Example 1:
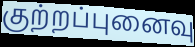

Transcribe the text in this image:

குற்றப்புனைவு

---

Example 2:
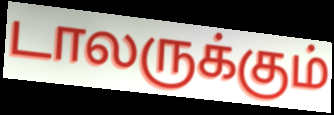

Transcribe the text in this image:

டாலருக்கும்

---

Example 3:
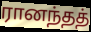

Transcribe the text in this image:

ரானந்தத்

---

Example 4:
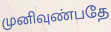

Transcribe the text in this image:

முனிவுண்பதே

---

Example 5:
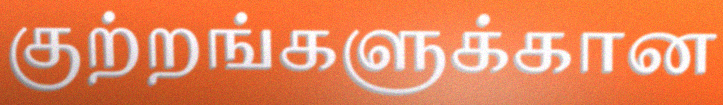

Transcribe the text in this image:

குற்றங்களுக்கான